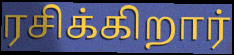
ரசிக்கிறார்